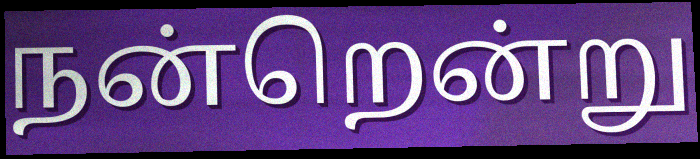
நன்றென்று